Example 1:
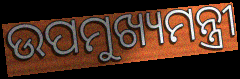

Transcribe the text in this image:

ଉପମୁଖ୍ୟମନ୍ତ୍ରୀ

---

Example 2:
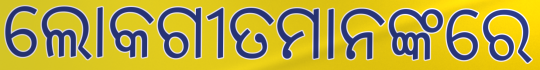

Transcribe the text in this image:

ଲୋକଗୀତମାନଙ୍କରେ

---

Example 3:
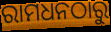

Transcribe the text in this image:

ରାମଧନଠାରୁ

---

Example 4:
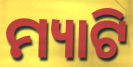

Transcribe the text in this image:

ମ୍ୟାଟି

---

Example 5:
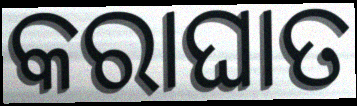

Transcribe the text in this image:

କରାଘାତ